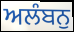
ਅਲੰਬਨੁ